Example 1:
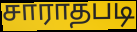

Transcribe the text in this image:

சாராதபடி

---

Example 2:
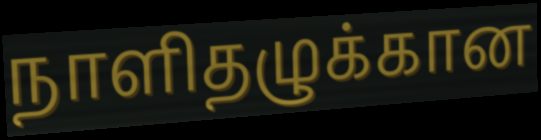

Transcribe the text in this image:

நாளிதழுக்கான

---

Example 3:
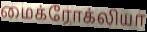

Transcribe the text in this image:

மைக்ரோக்லியா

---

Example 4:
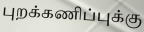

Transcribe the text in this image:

புறக்கணிப்புக்கு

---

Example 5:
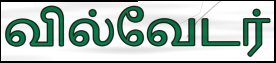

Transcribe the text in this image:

வில்வேடர்